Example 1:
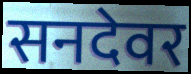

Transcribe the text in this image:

सनदेवर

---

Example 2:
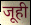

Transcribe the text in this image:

जूही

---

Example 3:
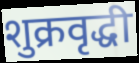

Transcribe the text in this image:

शुक्रवृद्धी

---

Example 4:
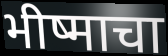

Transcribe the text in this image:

भीष्माचा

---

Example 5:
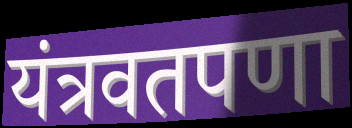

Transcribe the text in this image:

यंत्रवतपणा